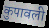
कुपावली